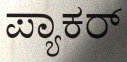
ಪ್ಯಾಕರ್